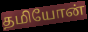
தமியோன்